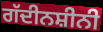
ਗੱਦੀਨਸ਼ੀਨੀ